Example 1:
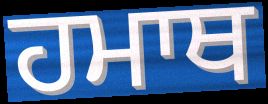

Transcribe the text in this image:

ਹਮਾਥ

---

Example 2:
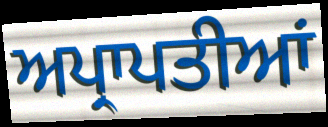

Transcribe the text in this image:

ਅਪ੍ਰਾਪਤੀਆਂ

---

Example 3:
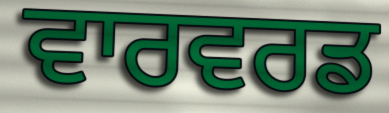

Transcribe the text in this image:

ਵਾਰਵਰਡ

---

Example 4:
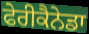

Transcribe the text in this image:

ਫੇਰੀਕੈਨੇਡਾ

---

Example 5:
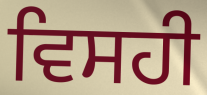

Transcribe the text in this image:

ਵਿਸਹੀ